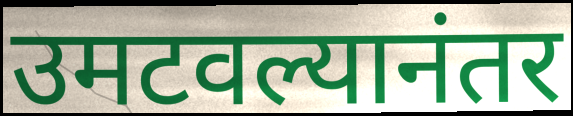
उमटवल्यानंतर